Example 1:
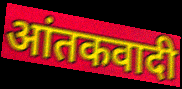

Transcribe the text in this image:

आंतकवादी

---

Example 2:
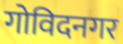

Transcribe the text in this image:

गोविदनगर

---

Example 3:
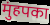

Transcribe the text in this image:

मुंहपका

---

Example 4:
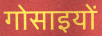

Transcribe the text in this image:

गोसाइयों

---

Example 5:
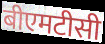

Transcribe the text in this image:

बीएमटीसी